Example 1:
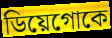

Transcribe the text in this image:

ডিয়েগোকে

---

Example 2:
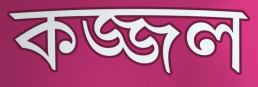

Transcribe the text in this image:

কজ্জল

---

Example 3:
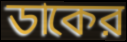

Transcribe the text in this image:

ডাকের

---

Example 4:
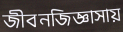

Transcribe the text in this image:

জীবনজিজ্ঞাসায়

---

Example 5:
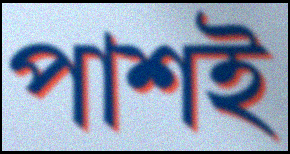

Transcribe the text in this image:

পাশই